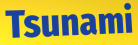
Tsunami